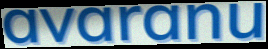
avaranu